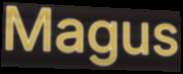
Magus